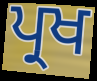
ਪ੍ਰਖ